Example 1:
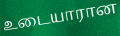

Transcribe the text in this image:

உடையாரான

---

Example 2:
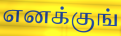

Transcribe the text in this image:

எனக்குங்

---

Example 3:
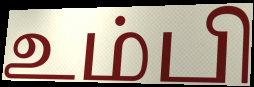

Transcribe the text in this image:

உம்பி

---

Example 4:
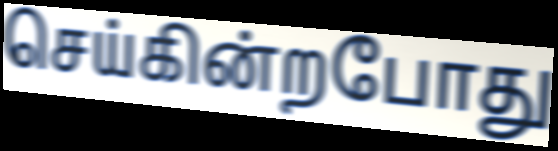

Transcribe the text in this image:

செய்கின்றபோது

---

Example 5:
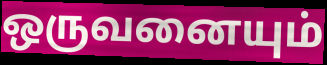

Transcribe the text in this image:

ஒருவனையும்